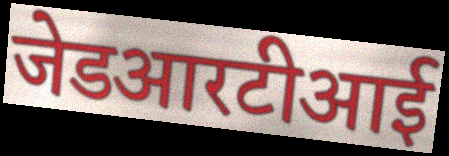
जेडआरटीआई